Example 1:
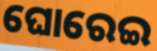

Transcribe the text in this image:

ଘୋରେଇ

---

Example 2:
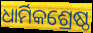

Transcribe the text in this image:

ଧାର୍ମିକଶ୍ରେଷ୍ଠ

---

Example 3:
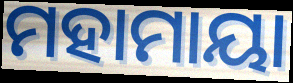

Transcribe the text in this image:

ମହାମାୟା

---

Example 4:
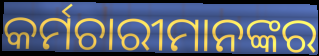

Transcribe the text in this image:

କର୍ମଚାରୀମାନଙ୍କର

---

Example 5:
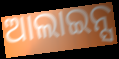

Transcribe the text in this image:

ଆଲାଇନ୍ସ